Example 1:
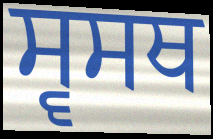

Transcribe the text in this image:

ਸ੍ਵਸਥ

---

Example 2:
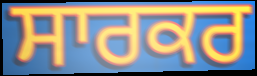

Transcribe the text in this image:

ਸਾਰਕਰ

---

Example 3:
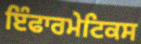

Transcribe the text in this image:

ਇੰਫਾਰਮੇਟਿਕਸ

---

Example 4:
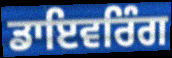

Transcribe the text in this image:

ਡਾਇਵਰਿੰਗ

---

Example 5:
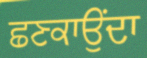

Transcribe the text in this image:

ਛਣਕਾਉਂਦਾ